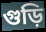
গুড়ি